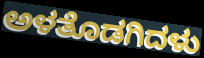
ಅಳತೊಡಗಿದಳು